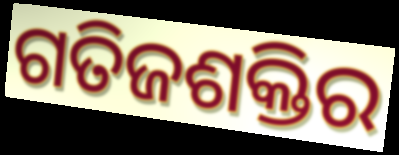
ଗତିଜଶକ୍ତିର